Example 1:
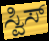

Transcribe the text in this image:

ಸ್ವಿಸ್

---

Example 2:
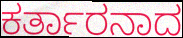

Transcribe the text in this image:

ಕರ್ತಾರನಾದ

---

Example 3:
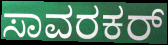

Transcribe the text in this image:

ಸಾವರಕರ್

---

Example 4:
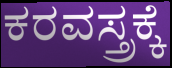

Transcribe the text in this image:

ಕರವಸ್ತ್ರಕ್ಕೆ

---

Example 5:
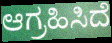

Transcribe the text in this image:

ಆಗ್ರಹಿಸಿದೆ